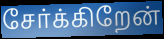
சேர்க்கிறேன்